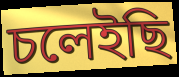
চলেইছি